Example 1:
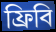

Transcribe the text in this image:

ফ্রিবি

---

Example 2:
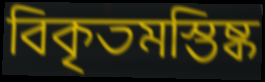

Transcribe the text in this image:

বিকৃতমস্তিষ্ক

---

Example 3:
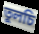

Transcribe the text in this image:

তুলচি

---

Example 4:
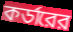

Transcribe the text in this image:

কর্ডারের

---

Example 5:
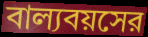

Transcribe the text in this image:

বাল্যবয়সের